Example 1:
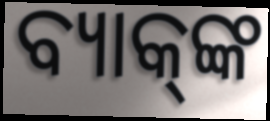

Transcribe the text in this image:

ବ୍ୟାକ୍‍ଙ୍କ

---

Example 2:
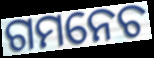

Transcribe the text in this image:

ଗମନେଚ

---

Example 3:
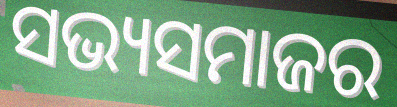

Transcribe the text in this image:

ସଭ୍ୟସମାଜର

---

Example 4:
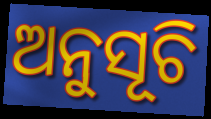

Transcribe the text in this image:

ଅନୁସୂଚି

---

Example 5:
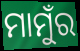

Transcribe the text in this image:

ମାମୁଁର